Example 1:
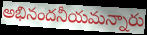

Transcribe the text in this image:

అభినందనీయమన్నారు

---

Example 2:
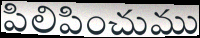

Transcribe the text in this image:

పిలిపించుము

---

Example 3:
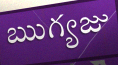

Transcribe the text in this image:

ఋగ్యజు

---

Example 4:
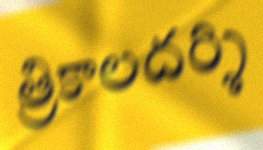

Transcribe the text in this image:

త్రికాలదర్శి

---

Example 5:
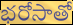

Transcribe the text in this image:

భరోసాతో